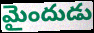
మైందుడు